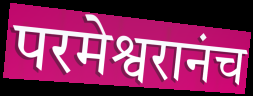
परमेश्वरानंच